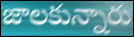
జాలకున్నారు